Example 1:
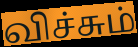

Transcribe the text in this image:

விச்சும்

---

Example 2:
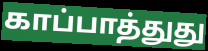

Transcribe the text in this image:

காப்பாத்துது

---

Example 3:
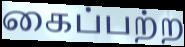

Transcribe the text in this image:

கைப்பற்ற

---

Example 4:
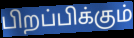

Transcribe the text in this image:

பிறப்பிக்கும்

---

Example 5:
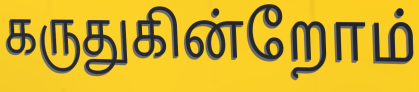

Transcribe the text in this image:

கருதுகின்றோம்